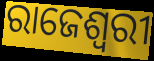
ରାଜେଶ୍ଵରୀ